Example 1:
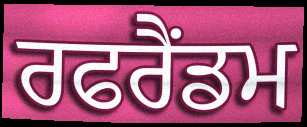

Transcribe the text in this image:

ਰਫਰੈਂਡਮ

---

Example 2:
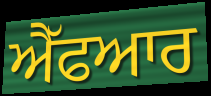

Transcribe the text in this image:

ਐੱਫਆਰ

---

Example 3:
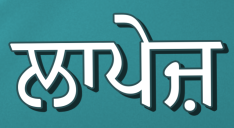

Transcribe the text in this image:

ਲਾਪੇਜ਼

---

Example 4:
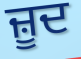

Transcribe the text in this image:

ਜ਼ੂਦ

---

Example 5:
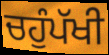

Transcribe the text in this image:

ਚਹੁੰਪੱਖੀ